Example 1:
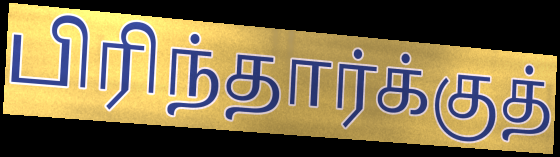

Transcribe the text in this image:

பிரிந்தார்க்குத்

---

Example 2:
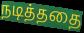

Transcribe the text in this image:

நடித்ததை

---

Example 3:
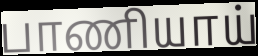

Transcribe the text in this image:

பாணியாய்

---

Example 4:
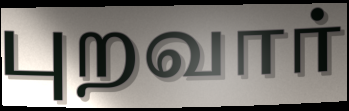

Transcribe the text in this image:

புறவார்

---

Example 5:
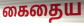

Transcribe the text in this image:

கைதைய